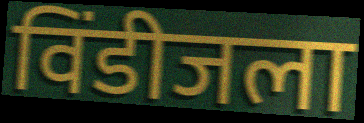
विंडीजला